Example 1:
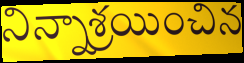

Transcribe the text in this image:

నిన్నాశ్రయించిన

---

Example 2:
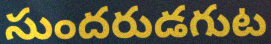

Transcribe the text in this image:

సుందరుడగుట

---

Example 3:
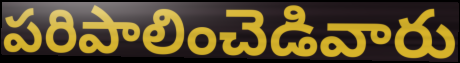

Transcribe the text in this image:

పరిపాలించెడివారు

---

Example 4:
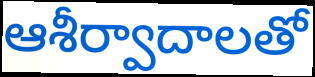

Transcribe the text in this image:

ఆశీర్వాదాలతో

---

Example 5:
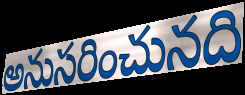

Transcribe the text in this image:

అనుసరించునది